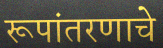
रूपांतरणाचे